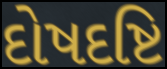
દોષદષ્ટિ